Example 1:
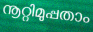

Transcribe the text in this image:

നൂറ്റിമുപ്പതാം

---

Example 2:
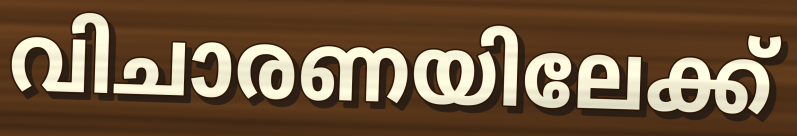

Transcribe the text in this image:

വിചാരണയിലേക്ക്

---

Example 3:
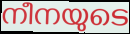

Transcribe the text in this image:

നീനയുടെ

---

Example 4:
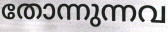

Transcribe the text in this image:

തോന്നുന്നവ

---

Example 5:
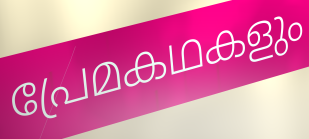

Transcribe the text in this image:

പ്രേമകഥകളും